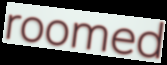
roomed